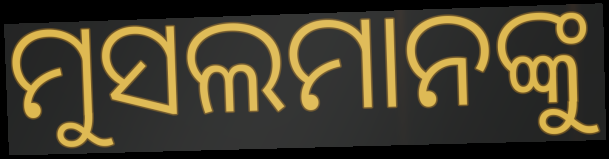
ମୁସଲମାନଙ୍କୁ